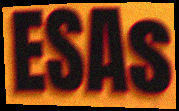
ESAs